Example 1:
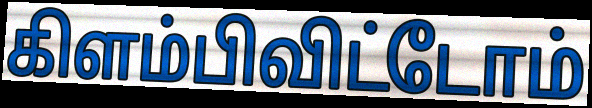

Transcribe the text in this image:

கிளம்பிவிட்டோம்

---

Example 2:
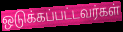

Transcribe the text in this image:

ஒடுக்கப்பட்டவர்கள்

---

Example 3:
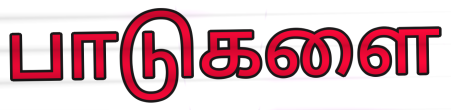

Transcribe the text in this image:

பாடுகளை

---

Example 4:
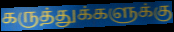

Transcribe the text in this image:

கருத்துக்களுக்கு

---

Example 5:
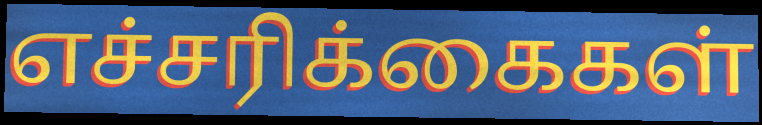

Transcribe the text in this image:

எச்சரிக்கைகள்